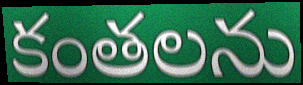
కంతలను